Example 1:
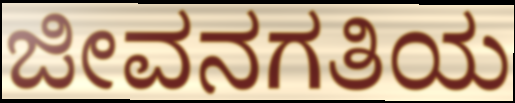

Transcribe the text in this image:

ಜೀವನಗತಿಯ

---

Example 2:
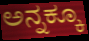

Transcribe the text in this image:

ಅನ್ನಕ್ಕೂ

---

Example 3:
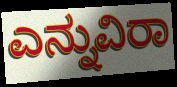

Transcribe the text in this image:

ಎನ್ನುವಿರಾ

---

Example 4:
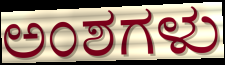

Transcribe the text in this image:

ಅಂಶಗಳು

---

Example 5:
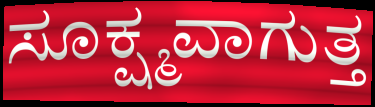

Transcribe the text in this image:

ಸೂಕ್ಷ್ಮವಾಗುತ್ತ